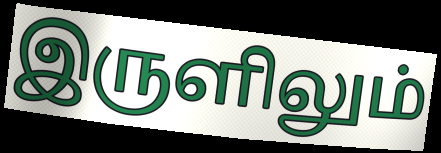
இருளிலும்